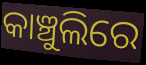
କାଞ୍ଚୁଲିରେ